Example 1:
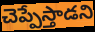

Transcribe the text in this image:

చెప్పేస్తాడని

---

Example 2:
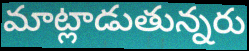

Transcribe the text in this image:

మాట్లాడుతున్నరు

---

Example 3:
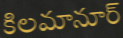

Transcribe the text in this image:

కిలమానూర్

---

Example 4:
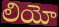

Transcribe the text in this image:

లియో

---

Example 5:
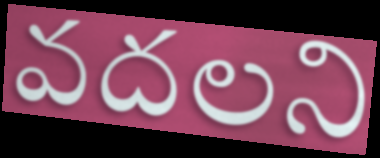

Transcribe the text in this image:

వదలని